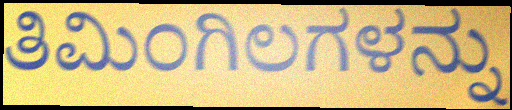
ತಿಮಿಂಗಿಲಗಳನ್ನು